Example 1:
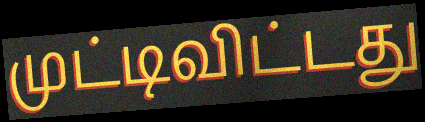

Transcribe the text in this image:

முட்டிவிட்டது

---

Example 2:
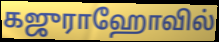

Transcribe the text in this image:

கஜுராஹோவில்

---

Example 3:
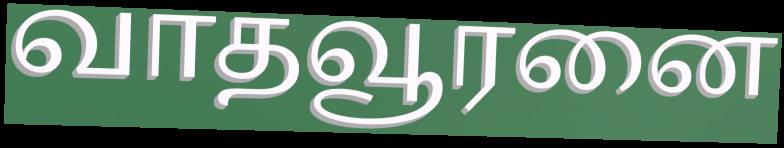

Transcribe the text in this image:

வாதவூரனை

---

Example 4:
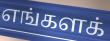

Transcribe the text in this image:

எங்களக்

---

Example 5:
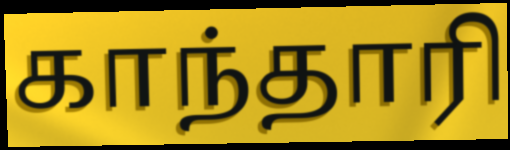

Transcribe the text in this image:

காந்தாரி